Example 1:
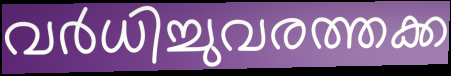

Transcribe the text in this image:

വർധിച്ചുവരത്തക്ക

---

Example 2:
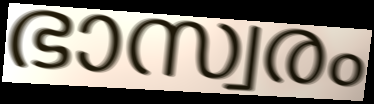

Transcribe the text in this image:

ഭാസ്വരം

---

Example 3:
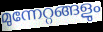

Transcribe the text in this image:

മുന്നേറ്റങ്ങളും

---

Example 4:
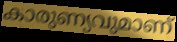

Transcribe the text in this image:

കാരുണ്യവുമാണ്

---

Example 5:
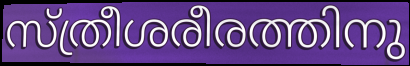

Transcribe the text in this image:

സ്ത്രീശരീരത്തിനു